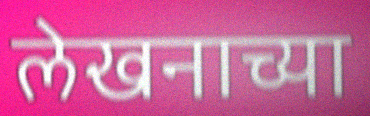
लेखनाच्या